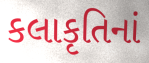
કલાકૃતિનાં